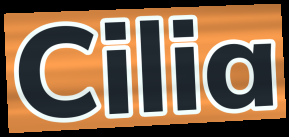
Cilia